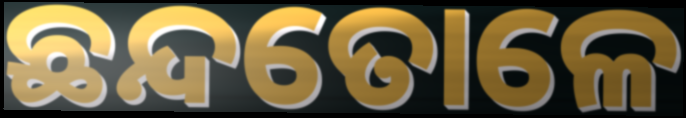
ଛନ୍ଦତୋଳେ